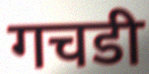
गचडी